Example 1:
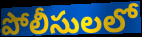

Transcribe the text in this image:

పోలీసులలో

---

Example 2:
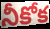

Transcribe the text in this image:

నీకోక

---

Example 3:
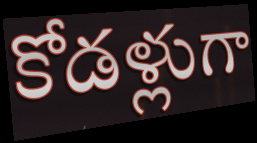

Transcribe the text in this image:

కోడళ్లుగా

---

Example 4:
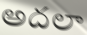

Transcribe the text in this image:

అదలా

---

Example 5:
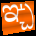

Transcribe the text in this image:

ఞ్చ